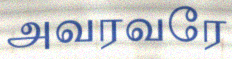
அவரவரே